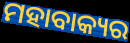
ମହାବାକ୍ୟର